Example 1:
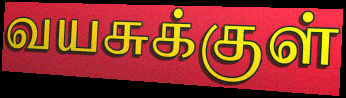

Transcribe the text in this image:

வயசுக்குள்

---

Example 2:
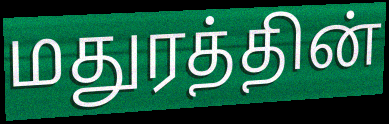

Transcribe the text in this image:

மதுரத்தின்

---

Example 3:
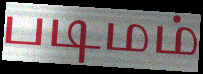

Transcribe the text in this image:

படிமம்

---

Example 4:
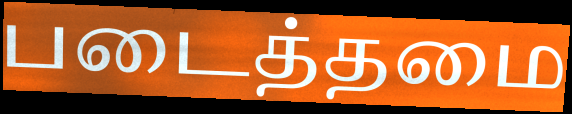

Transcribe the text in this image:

படைத்தமை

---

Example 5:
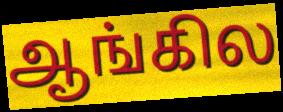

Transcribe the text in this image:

ஆங்கில